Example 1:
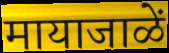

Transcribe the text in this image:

मायाजाळें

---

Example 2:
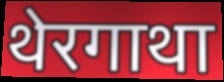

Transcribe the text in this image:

थेरगाथा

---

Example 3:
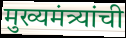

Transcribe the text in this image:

मुख्यमंत्र्यांची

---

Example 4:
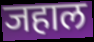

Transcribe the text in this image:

जहाल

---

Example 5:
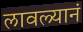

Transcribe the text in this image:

लावल्यानं